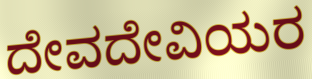
ದೇವದೇವಿಯರ